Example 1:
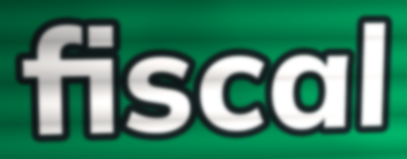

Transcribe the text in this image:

fiscal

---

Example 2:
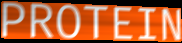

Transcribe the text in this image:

PROTEIN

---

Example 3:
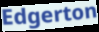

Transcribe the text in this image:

Edgerton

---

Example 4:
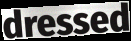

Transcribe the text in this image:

dressed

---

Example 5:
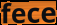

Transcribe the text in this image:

fece